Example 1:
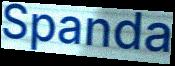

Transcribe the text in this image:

Spanda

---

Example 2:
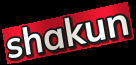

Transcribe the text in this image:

shakun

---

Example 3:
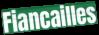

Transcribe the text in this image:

Fiancailles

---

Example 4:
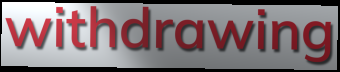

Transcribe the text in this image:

withdrawing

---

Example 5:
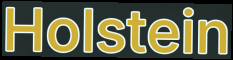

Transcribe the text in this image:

Holstein